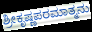
ಶ್ರೀಕೃಷ್ಣಪರಮಾತ್ಮನು